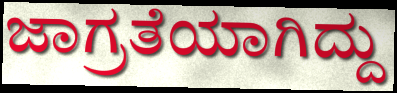
ಜಾಗ್ರತೆಯಾಗಿದ್ದು